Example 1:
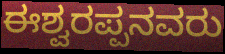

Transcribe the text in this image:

ಈಶ್ವರಪ್ಪನವರು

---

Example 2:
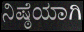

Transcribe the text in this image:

ನಿಷ್ಠೆಯಾಗಿ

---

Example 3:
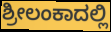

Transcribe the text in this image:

ಶ್ರೀಲಂಕಾದಲ್ಲಿ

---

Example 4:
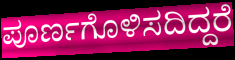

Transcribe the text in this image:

ಪೂರ್ಣಗೊಳಿಸದಿದ್ದರೆ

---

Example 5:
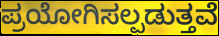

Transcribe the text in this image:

ಪ್ರಯೋಗಿಸಲ್ಪಡುತ್ತವೆ